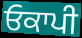
ਓਕਾਪੀ